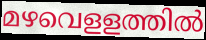
മഴവെളളത്തിൽ